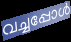
വച്ചപ്പോൾ